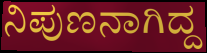
ನಿಪುಣನಾಗಿದ್ದ